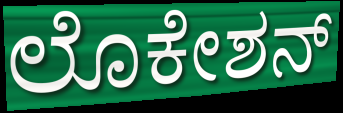
ಲೊಕೇಶನ್